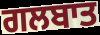
ਗਲਬਾਤ